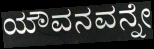
ಯೌವನವನ್ನೇ